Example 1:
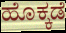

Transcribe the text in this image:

ಹೊಕ್ಕಡೆ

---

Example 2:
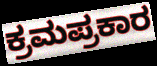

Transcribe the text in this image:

ಕ್ರಮಪ್ರಕಾರ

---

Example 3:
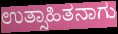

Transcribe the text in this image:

ಉತ್ಸಾಹಿತನಾಗು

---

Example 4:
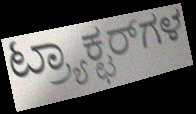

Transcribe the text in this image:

ಟ್ರ್ಯಾಕ್ಟರ್‌ಗಳ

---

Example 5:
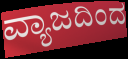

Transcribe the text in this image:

ವ್ಯಾಜದಿಂದ